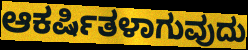
ಆಕರ್ಷಿತಳಾಗುವುದು